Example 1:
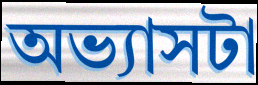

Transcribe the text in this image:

অভ্যাসটা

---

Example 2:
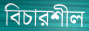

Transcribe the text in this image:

বিচারশীল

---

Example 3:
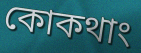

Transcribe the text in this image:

কোকথাং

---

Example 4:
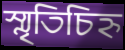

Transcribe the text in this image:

স্মৃতিচিহ্ন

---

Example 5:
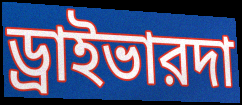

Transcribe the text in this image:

ড্রাইভারদা